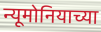
न्यूमोनियाच्या